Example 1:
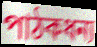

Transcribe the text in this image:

পাঠকধন্য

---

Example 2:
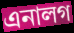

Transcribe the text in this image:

এনালগ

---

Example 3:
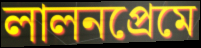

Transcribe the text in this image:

লালনপ্রেমে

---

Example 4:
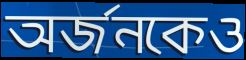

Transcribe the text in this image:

অর্জনকেও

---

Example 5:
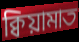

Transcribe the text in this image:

ক্বিয়ামাত